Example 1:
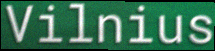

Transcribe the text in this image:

Vilnius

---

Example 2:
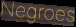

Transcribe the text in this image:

Negroes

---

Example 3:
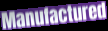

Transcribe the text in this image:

Manufactured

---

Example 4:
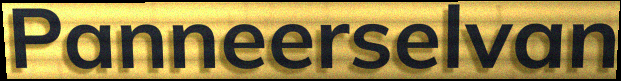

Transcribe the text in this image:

Panneerselvan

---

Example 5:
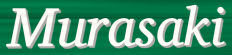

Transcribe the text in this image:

Murasaki